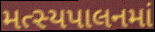
મત્સ્યપાલનમાં